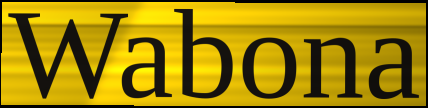
Wabona